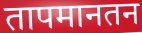
तापमानतन